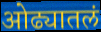
ओढ्यातलं